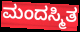
ಮಂದಸ್ಮಿತ